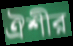
ঐশীর